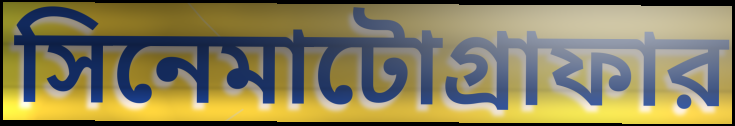
সিনেমাটোগ্রাফার